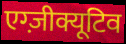
एग्ज़ीक्यूटिव